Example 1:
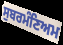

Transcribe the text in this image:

ਸੁਬਰਮੰਣਿਅਮ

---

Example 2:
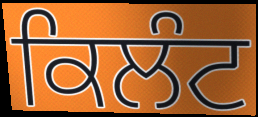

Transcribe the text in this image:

ਕਿਲੰਟ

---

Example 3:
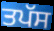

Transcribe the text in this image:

ਤਪੱਸ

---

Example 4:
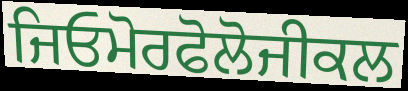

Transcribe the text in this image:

ਜਿਓਮੋਰਫੋਲੋਜੀਕਲ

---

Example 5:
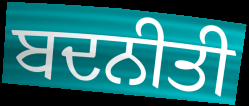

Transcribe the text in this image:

ਬਦਨੀਤੀ